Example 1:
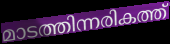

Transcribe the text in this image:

മാടത്തിന്നരികത്ത്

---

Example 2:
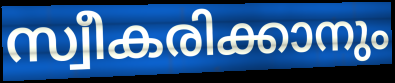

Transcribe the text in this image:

സ്വീകരിക്കാനും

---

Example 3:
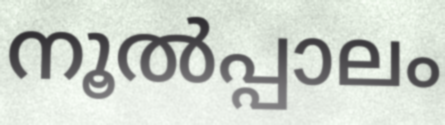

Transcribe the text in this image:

നൂൽപ്പാലം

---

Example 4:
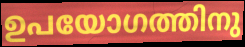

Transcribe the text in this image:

ഉപയോഗത്തിനു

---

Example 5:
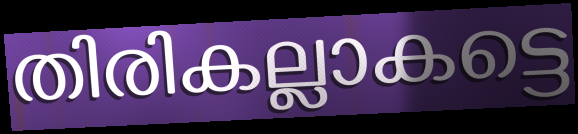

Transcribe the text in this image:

തിരികല്ലാകട്ടെ